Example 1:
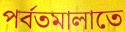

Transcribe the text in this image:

পর্বতমালাতে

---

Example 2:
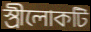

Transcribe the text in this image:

স্ত্রীলোকটি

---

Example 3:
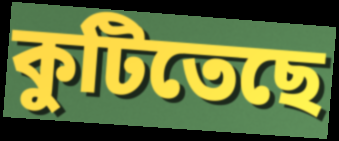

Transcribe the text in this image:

কুটিতেছে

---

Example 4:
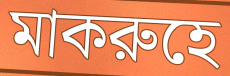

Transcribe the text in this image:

মাকরুহে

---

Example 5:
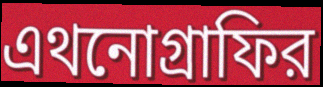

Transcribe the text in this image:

এথনোগ্রাফির